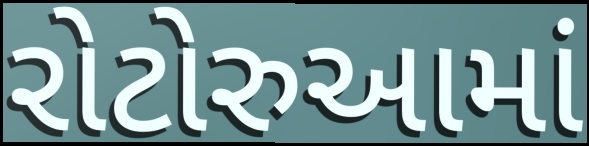
રોટોરુઆમાં